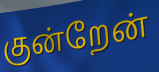
குன்றேன்